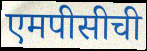
एमपीसीची